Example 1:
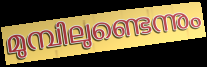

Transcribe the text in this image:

മുമ്പിലുണ്ടെന്നും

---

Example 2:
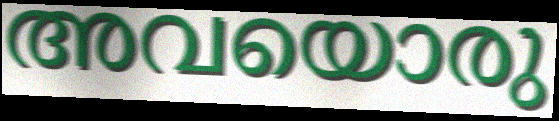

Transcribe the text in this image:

അവയൊരു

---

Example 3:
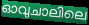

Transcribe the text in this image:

ഓവുചാലിലെ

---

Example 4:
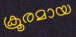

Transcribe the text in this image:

ക്രൂരമായ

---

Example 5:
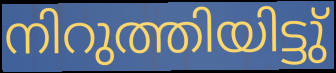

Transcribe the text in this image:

നിറുത്തിയിട്ടു്